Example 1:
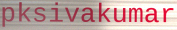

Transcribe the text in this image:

pksivakumar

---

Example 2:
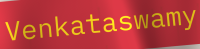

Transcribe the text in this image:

Venkataswamy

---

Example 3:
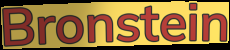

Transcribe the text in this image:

Bronstein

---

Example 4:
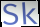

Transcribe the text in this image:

Sk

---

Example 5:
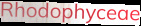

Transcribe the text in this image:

Rhodophyceae